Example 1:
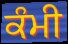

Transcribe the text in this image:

ਕੰਮੀ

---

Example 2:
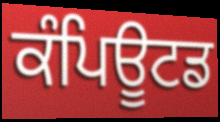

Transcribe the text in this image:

ਕੰਪਿਊਟਡ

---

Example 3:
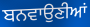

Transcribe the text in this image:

ਬਨਵਾਉਣੀਆਂ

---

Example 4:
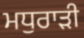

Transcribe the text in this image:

ਮਧੁਰਾੜੀ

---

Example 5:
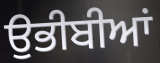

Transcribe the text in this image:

ਉਭੀਬੀਆਂ